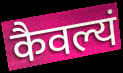
कैवल्यं